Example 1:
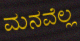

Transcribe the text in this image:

ಮನವೆಲ್ಲ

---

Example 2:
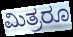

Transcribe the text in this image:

ಮಿತ್ರರೂ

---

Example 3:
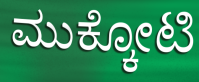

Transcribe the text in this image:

ಮುಕ್ಕೋಟಿ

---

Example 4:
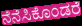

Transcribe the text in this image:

ನೆನೆಸಿಕೊಂಡರೆ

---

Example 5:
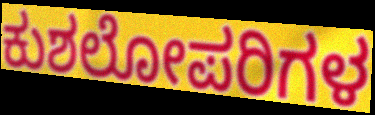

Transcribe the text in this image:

ಕುಶಲೋಪರಿಗಳ